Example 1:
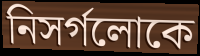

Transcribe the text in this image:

নিসর্গলোকে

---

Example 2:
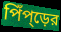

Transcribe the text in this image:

পিঁপ্ড়ের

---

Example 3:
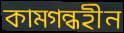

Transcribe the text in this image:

কামগন্ধহীন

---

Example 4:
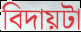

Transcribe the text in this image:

বিদায়টা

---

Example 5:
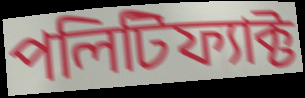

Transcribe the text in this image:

পলিটিফ্যাক্ট